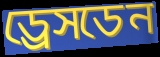
ড্রেসডেন